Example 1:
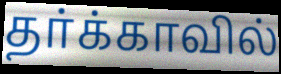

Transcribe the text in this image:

தர்க்காவில்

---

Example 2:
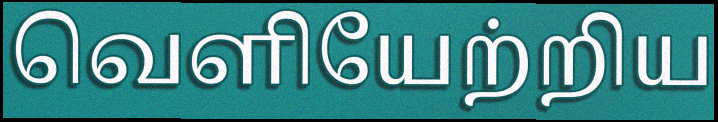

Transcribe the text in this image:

வெளியேற்றிய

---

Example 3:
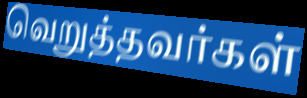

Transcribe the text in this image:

வெறுத்தவர்கள்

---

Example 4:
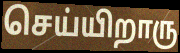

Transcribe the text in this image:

செய்யிறாரு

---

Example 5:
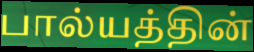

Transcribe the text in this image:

பால்யத்தின்